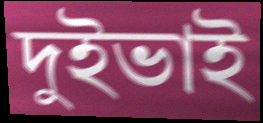
দুইভাই